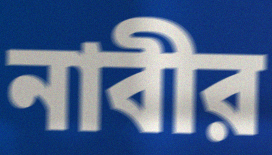
নাবীর